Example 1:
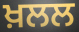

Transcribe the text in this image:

ਖ਼ਲਲ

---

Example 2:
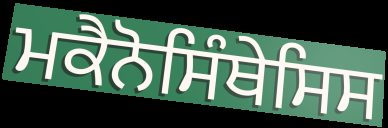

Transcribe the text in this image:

ਮਕੈਨੋਸਿੰਥੇਸਿਸ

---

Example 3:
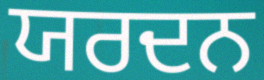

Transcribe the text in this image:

ਯਰਦਨ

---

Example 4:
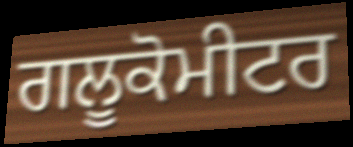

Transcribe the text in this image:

ਗਲੂਕੋਮੀਟਰ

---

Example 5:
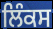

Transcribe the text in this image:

ਲਿੰਕਸ